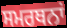
ਸਮਰਥਨਾਂ